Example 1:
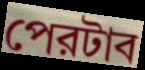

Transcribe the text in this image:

পেরটাব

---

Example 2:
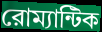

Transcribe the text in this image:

রোম্যান্টিক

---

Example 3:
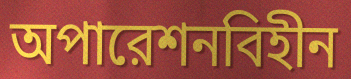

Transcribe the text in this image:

অপারেশনবিহীন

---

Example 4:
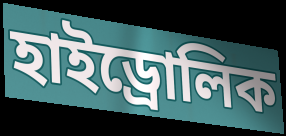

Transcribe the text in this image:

হাইড্রোলিক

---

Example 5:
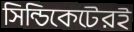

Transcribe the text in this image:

সিন্ডিকেটেরই